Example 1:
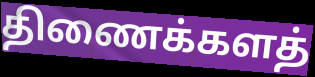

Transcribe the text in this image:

திணைக்களத்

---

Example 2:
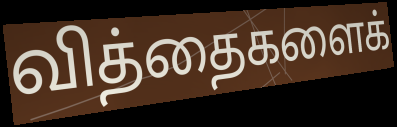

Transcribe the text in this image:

வித்தைகளைக்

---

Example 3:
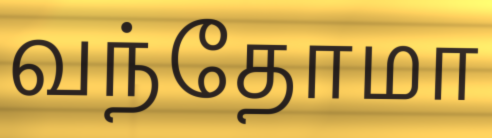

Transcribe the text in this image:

வந்தோமா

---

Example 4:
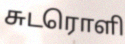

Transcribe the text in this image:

சுடரொளி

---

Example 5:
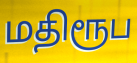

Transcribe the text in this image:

மதிரூப